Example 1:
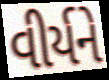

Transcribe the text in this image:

વીર્યને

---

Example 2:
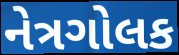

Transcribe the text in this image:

નેત્રગોલક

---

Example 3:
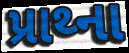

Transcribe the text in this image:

પ્રાથ્ના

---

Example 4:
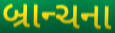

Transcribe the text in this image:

બ્રાન્ચના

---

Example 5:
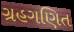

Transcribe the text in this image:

ગ્રહગણિત